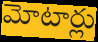
మోటార్లు